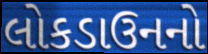
લોકડાઉનનો